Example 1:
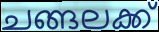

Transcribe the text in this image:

ചങ്ങലക്ക്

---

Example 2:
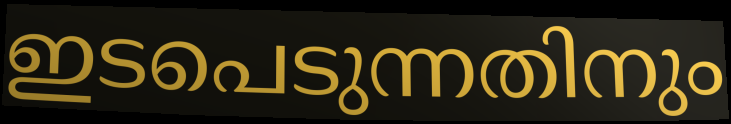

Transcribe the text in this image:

ഇടപെടുന്നതിനും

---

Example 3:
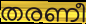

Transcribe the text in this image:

തരണീ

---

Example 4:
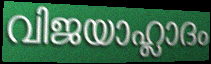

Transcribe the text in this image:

വിജയാഹ്ലാദം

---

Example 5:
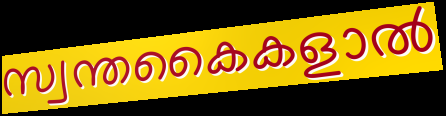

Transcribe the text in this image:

സ്വന്തകൈകളാൽ